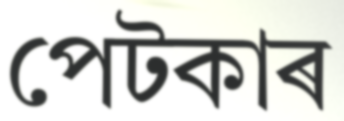
পেটকাৰ